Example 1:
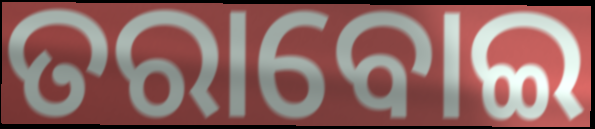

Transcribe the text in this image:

ତରାବୋଇ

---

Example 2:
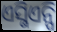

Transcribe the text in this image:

ଏସ୍ଜିଏନ୍ପି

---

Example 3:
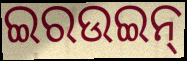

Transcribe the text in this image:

ଇରଉଇନ୍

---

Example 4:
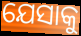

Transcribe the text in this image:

ଯେସାକୁ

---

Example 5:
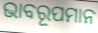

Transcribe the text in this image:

ଭାବରୂପମାନ